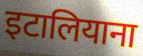
इटालियाना